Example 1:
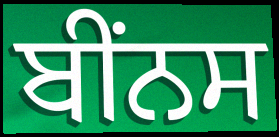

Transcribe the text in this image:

ਬੀਂਨਸ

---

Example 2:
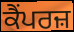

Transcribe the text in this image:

ਕੈਂਪਰਜ਼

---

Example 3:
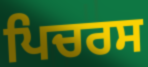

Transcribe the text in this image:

ਪਿਚਰਸ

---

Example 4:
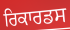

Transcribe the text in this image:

ਰਿਕਾਰਡਸ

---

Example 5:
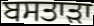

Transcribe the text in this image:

ਬਸਤਾੜਾ